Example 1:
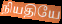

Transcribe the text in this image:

நியதியே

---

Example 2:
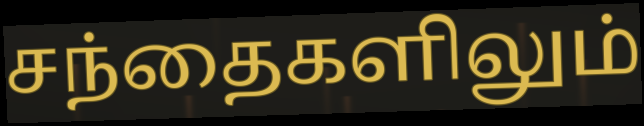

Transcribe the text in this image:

சந்தைகளிலும்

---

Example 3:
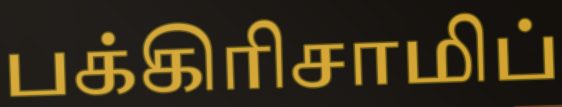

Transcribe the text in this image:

பக்கிரிசாமிப்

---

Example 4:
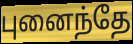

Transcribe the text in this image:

புனைந்தே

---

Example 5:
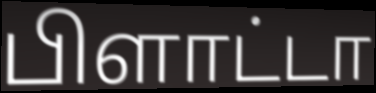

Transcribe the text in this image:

பிளாட்டா